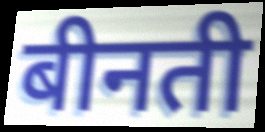
बीनती